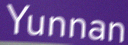
Yunnan